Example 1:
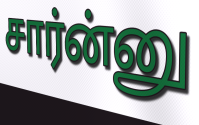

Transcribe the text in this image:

சார்ன்னு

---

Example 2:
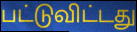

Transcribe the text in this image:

பட்டுவிட்டது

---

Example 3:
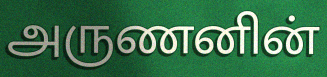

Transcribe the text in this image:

அருணனின்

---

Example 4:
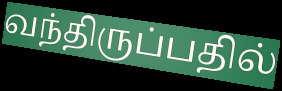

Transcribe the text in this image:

வந்திருப்பதில்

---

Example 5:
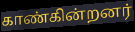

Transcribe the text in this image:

காண்கின்றனர்